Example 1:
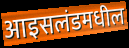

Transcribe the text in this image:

आइसलंडमधील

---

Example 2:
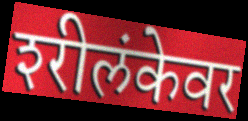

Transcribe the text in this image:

श्रीलंकेवर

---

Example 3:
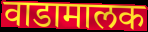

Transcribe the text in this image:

वाडामालक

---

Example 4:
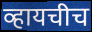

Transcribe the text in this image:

व्हायचीच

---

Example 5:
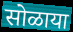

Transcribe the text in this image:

सोळाया